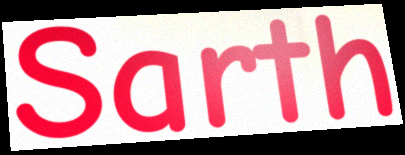
Sarth